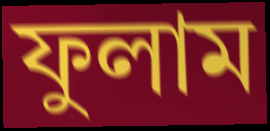
ফুলাম